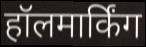
हॉलमार्किंग